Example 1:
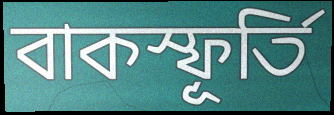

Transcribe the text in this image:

বাকস্ফূর্তি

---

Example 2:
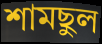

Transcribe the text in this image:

শামছুল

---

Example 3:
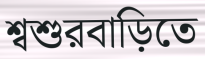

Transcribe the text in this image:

শ্বশুরবাড়িতে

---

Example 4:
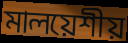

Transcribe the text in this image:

মালয়েশীয়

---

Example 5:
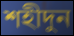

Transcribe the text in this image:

শহীদুন